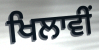
ਖਿਲਾਵੀਂ